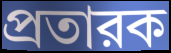
প্রতারক